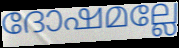
ദോഷമല്ലേ